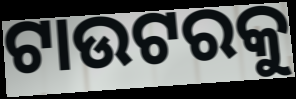
ଟାଉଟରକୁ